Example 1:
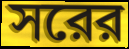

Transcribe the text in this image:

সরের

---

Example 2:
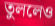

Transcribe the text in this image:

তুললেও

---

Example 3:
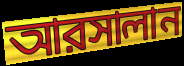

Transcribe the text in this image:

আরসালান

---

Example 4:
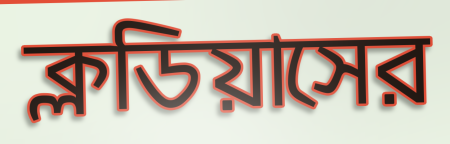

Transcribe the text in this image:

ক্লডিয়াসের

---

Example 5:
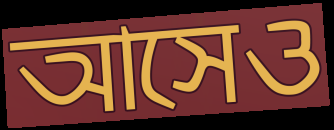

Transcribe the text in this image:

আসেও